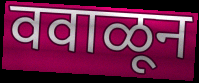
ववाळून